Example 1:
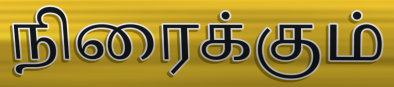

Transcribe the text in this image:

நிரைக்கும்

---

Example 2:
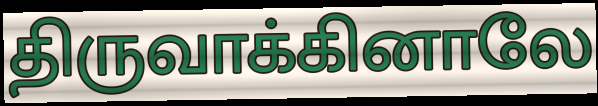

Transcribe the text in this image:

திருவாக்கினாலே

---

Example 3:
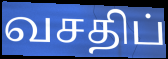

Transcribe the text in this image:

வசதிப்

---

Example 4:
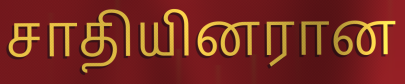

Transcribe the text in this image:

சாதியினரான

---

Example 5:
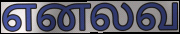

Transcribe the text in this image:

எனலவ